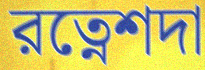
রত্নেশদা